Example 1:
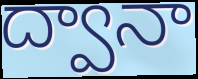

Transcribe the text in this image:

ద్వానా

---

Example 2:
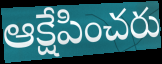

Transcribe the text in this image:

ఆక్షేపించరు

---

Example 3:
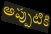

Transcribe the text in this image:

అప్పుటికి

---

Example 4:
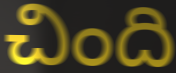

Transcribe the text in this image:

చింది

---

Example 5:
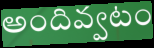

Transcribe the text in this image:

అందివ్వటం